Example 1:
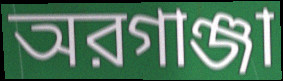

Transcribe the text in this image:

অরগাঞ্জা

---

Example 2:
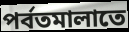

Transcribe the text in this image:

পর্বতমালাতে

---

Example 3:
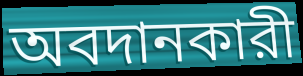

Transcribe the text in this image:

অবদানকারী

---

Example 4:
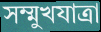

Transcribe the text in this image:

সম্মুখযাত্রা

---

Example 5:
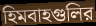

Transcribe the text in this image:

হিমবাহগুলির